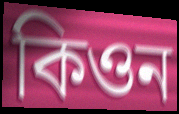
কিওন